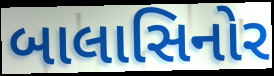
બાલાસિનોર